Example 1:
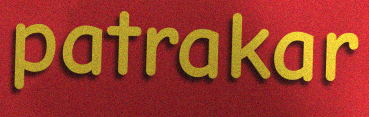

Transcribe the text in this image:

patrakar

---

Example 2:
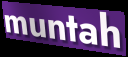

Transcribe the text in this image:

muntah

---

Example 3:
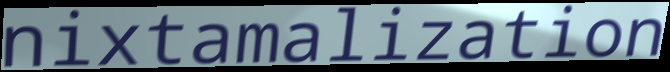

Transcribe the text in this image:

nixtamalization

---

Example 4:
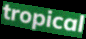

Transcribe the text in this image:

tropical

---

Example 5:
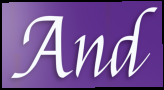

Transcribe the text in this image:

And